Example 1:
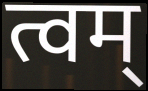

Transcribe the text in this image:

त्वम्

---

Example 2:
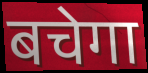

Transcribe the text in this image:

बचेगा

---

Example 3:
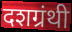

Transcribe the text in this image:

दशग्रंथी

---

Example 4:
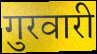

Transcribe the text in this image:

गुरवारी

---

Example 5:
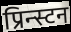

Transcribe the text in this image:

प्रिन्स्टन